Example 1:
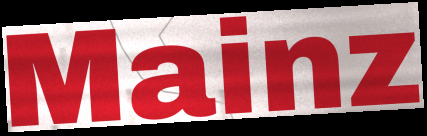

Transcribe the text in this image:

Mainz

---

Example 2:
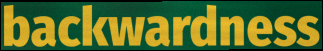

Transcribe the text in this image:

backwardness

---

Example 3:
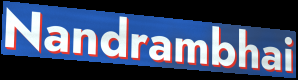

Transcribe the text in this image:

Nandrambhai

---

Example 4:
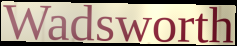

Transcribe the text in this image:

Wadsworth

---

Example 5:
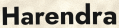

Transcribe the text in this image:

Harendra